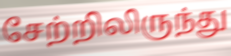
சேற்றிலிருந்து